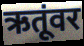
ऋतूंवर